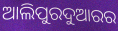
ଆଲିପୁରଦୁଆରର